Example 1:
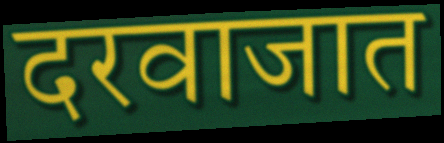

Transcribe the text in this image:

दरवाजात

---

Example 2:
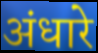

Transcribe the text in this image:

अंधारे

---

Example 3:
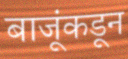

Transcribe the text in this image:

बाजूंकडून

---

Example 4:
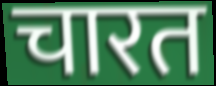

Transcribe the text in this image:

चारत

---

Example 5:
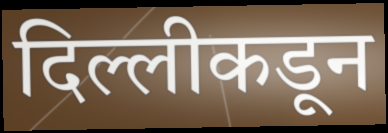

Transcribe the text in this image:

दिल्लीकडून